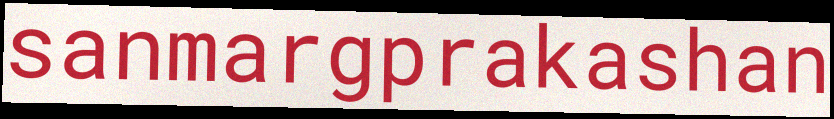
sanmargprakashan